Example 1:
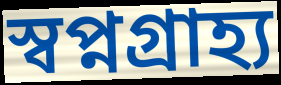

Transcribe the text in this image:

স্বপ্নগ্রাহ্য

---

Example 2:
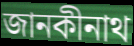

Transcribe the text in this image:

জানকীনাথ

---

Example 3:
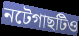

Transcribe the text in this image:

নটেগাছটিও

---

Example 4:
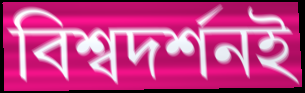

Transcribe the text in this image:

বিশ্বদর্শনই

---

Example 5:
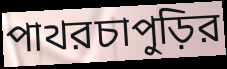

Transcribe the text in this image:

পাথরচাপুড়ির